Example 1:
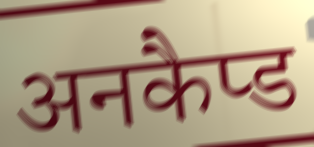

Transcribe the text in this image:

अनकैप्ड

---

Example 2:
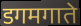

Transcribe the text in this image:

डगमगाते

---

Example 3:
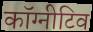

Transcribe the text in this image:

कॉग्‍नीटिव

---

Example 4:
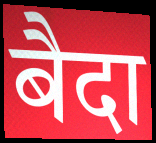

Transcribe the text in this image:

बैदा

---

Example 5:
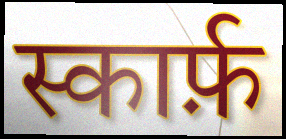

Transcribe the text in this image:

स्कार्फ़